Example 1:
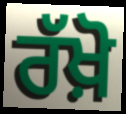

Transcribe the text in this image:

ਰੱਖ਼ੋ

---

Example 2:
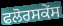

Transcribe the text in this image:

ਫਲੋਰਸਕੇਂਸ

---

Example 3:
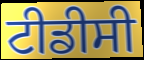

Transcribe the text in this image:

ਟੀਡੀਸੀ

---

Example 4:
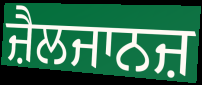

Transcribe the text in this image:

ਜ਼ੈਲਜਾਨਜ਼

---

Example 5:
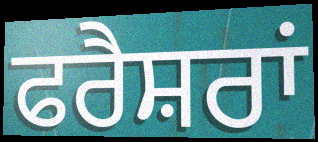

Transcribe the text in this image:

ਫਰੈਸ਼ਰਾਂ